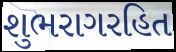
શુભરાગરહિત